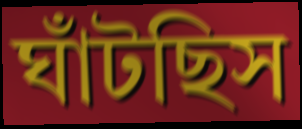
ঘাঁটছিস